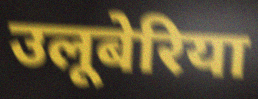
उलूबेरिया